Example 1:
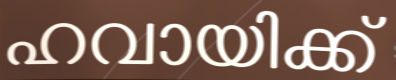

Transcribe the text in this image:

ഹവായിക്ക്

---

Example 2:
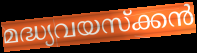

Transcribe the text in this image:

മദ്ധ്യവയസ്ക്കൻ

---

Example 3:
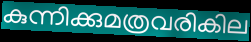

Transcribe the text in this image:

കുന്നിക്കുമത്രവരികില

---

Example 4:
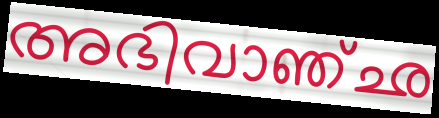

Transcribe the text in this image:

അഭിവാഞ്ഛ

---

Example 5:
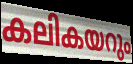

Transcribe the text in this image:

കലികയറും